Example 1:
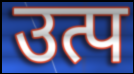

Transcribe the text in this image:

उत्प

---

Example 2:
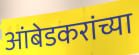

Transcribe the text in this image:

आंबेडकरांच्या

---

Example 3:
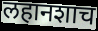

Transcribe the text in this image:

लहानशाच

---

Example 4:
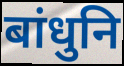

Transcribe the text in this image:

बांधुनि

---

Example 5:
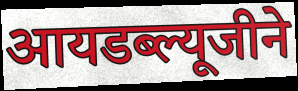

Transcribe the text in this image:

आयडब्ल्यूजीने